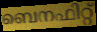
ബെനഫിറ്റ്